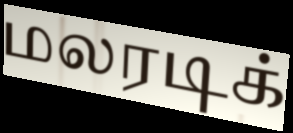
மலரடிக்